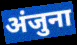
अंजुना